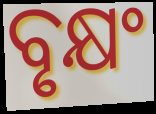
ବୃକ୍ଷଂ